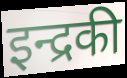
इन्द्रकी